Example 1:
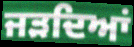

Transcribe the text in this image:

ਜੜਦਿਆਂ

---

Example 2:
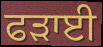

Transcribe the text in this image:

ਫੜਾਈ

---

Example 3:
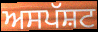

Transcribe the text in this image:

ਅਸਪੱਸ਼ਟ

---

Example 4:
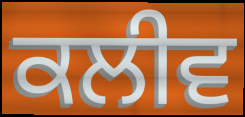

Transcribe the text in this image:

ਕਲੀਵ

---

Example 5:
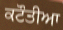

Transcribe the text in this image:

ਕਟੌਤੀਆ